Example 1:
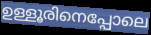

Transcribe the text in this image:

ഉള്ളൂരിനെപ്പോലെ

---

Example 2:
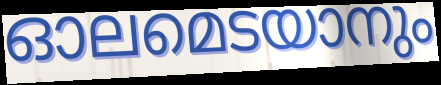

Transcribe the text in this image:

ഓലമെടയാനും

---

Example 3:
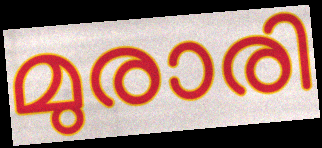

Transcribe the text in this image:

മുരാരി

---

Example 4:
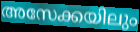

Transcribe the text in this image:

അസേക്കയിലും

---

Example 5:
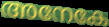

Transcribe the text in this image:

അനേകേ